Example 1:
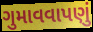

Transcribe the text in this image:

ગુમાવવાપણું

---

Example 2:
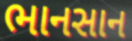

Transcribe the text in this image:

ભાનસાન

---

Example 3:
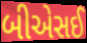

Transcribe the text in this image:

બીએસઈ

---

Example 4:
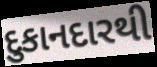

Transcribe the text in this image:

દુકાનદારથી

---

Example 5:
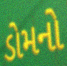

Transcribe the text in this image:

ડોમનો